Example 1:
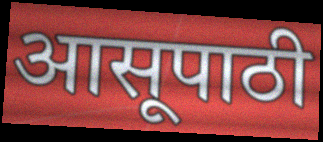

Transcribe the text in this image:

आसूपाठी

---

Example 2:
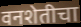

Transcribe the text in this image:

वनशेतीचा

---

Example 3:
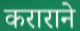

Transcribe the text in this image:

कराराने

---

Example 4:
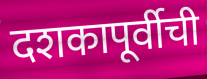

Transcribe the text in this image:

दशकापूर्वीची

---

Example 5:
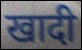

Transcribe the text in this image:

खादी